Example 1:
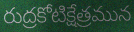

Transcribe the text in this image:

రుద్రకోటిక్షేత్రమున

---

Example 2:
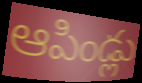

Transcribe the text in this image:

ఆపిండ్లు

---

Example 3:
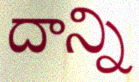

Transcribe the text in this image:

దాన్ని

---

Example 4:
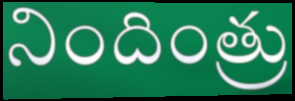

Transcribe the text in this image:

నిందింత్రు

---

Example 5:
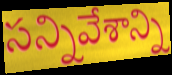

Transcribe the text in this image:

సన్నివేశాన్ని